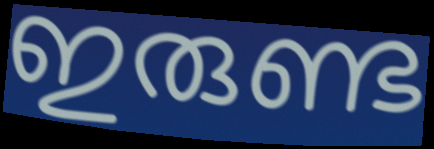
ഇരുണ്ട